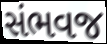
સંભવજ